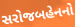
સરોજબહેનનો